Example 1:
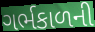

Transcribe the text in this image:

ગર્ભકાળની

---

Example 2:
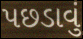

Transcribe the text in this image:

પછડાવું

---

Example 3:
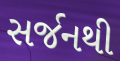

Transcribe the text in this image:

સર્જનથી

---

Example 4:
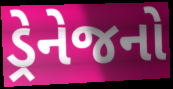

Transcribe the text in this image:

ડ્રેનેજનો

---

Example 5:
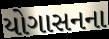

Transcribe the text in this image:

યોગાસનના